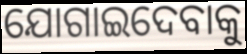
ଯୋଗାଇଦେବାକୁ